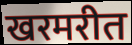
खरमरीत